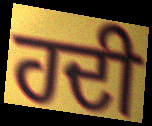
ਹਦੀ